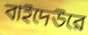
বাইদেউৱে